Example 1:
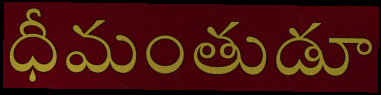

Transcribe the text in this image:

ధీమంతుడూ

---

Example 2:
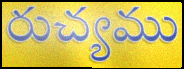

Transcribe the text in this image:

రుచ్యము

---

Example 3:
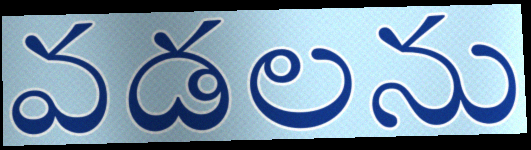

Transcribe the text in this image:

వడలను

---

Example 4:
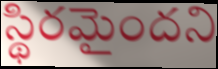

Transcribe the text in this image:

స్థిరమైందని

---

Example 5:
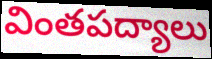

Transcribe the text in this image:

వింతపద్యాలు